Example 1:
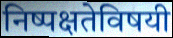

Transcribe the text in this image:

निष्पक्षतेविषयी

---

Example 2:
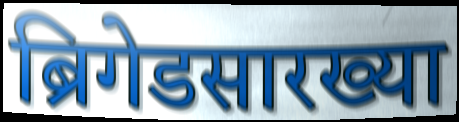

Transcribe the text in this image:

ब्रिगेडसारख्या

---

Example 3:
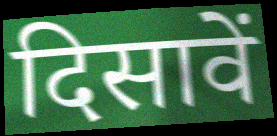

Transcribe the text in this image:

दिसावें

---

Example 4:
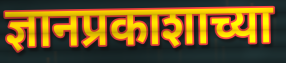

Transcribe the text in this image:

ज्ञानप्रकाशाच्या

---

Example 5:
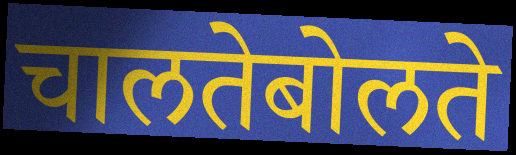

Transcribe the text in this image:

चालतेबोलते